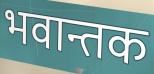
भवान्तक